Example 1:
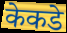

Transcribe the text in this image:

केकडे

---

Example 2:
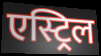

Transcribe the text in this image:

एस्ट्रिल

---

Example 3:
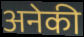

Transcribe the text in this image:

अनेकी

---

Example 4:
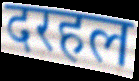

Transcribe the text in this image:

दरहल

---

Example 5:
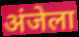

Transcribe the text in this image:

अंजेला